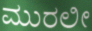
ಮುರಲೀ